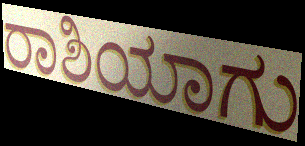
ರಾಶಿಯಾಗು